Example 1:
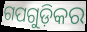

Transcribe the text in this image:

ଗପଗୁଡ଼ିକର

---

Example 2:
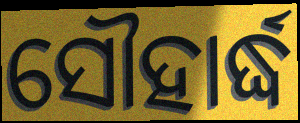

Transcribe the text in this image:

ସୌହାର୍ଦ୍ଧ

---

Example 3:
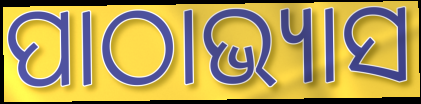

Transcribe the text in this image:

ପାଠାଭ୍ୟାସ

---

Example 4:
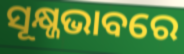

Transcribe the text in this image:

ସୂକ୍ଷ୍ଜଭାବରେ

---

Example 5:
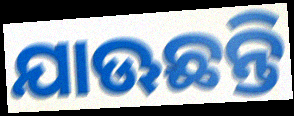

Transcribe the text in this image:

ଯାଊଛନ୍ତି